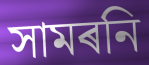
সামৰনি